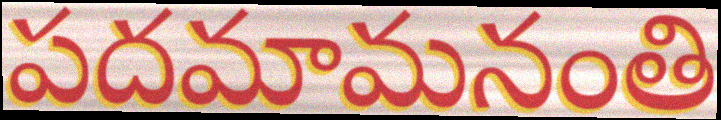
పదమామనంతి